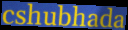
cshubhada